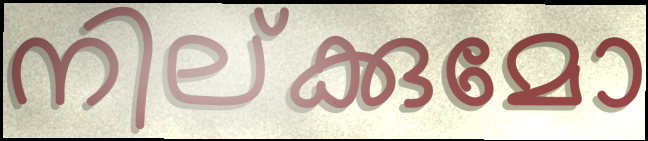
നില്ക്കുമോ